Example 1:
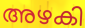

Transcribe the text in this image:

അഴകി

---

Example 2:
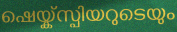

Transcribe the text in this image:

ഷെയ്ക്സ്പിയറുടെയും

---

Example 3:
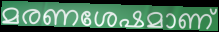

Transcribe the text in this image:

മരണശേഷമാണ്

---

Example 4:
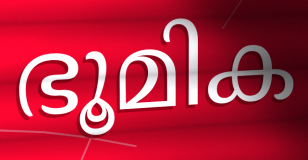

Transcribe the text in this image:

ഭൂമിക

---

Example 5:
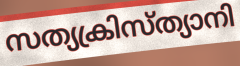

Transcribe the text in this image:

സത്യക്രിസ്ത്യാനി